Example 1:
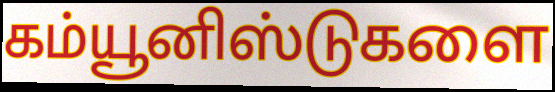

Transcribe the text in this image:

கம்யூனிஸ்டுகளை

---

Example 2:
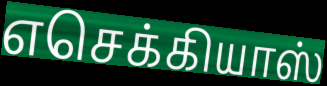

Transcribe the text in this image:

எசெக்கியாஸ்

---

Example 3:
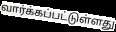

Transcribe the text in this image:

வார்க்கப்பட்டுள்ளது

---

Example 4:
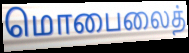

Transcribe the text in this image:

மொபைலைத்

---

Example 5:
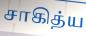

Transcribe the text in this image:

சாகித்ய